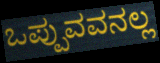
ಒಪ್ಪುವವನಲ್ಲ